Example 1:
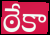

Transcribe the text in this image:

ఠేకా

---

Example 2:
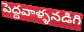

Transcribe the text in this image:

పెద్దవాళ్ళనడిగి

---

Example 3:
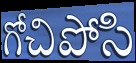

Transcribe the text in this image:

గోచిపోసి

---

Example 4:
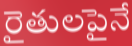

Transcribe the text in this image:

రైతులపైనే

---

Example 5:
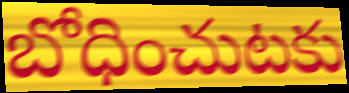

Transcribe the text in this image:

బోధించుటకు